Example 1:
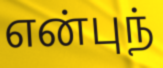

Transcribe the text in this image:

என்புந்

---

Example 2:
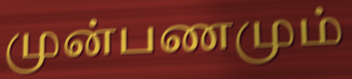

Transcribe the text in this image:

முன்பணமும்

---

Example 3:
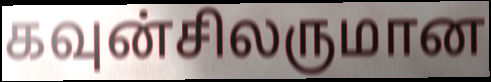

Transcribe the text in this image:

கவுன்சிலருமான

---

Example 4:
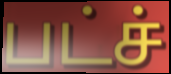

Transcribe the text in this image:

பட்ச்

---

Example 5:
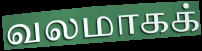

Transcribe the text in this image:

வலமாகக்